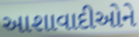
આશાવાદીઓને